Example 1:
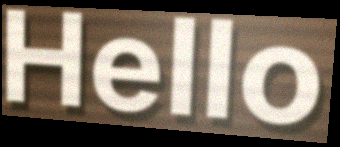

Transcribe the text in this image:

Hello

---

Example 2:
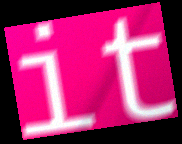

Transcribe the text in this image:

it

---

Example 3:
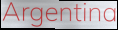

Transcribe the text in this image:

Argentina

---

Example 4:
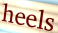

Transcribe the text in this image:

heels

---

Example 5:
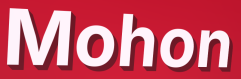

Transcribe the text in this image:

Mohon